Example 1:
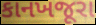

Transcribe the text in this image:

કાનખજૂરા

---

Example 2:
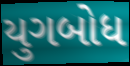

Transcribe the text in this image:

યુગબોધ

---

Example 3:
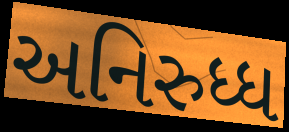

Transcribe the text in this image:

અનિરુધ્ધ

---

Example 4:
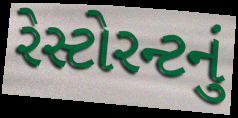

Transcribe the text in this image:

રેસ્ટોરન્ટનું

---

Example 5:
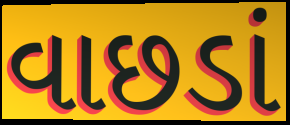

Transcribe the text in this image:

વાછડાં